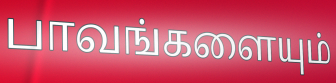
பாவங்களையும்